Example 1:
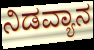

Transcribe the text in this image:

ನಿಡವ್ಯಾನ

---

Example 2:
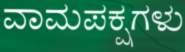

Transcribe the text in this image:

ವಾಮಪಕ್ಷಗಳು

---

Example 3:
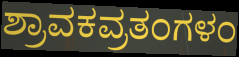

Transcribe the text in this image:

ಶ್ರಾವಕವ್ರತಂಗಳಂ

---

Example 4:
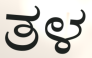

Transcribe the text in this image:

ತಳ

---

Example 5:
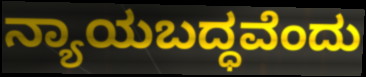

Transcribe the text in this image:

ನ್ಯಾಯಬದ್ಧವೆಂದು